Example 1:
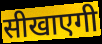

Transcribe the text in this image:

सीखाएगी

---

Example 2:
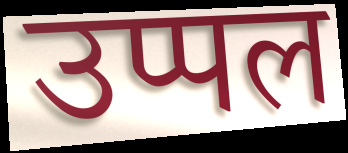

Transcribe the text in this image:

उप्पल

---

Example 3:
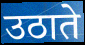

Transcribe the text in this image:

उठाते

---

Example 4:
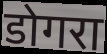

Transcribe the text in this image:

डोगरा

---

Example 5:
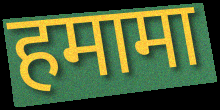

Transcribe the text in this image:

हमामा